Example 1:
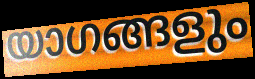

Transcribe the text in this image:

യാഗങ്ങളും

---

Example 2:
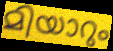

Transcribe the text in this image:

മിയാറും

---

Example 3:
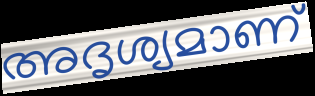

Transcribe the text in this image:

അദൃശ്യമാണ്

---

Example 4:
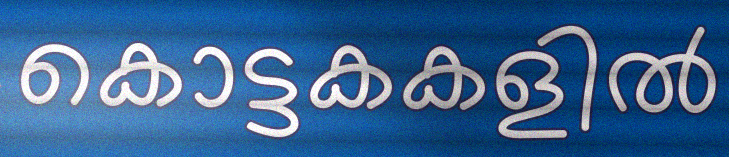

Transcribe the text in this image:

കൊട്ടകകളിൽ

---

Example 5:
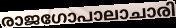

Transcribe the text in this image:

രാജഗോപാലാചാരി